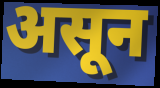
असून